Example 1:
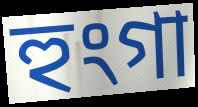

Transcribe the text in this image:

হুংগা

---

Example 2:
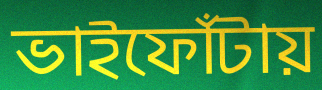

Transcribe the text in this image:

ভাইফোঁটায়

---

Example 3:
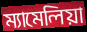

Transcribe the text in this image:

ম্যামেলিয়া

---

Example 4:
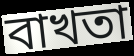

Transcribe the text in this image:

বাখতা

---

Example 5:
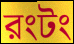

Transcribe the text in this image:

রংটং